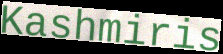
Kashmiris